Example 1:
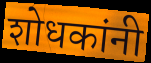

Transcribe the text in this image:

शोधकांनी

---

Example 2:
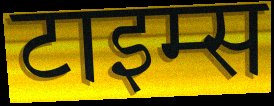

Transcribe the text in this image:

टाइम्स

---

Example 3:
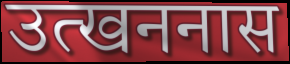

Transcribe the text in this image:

उत्खननास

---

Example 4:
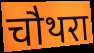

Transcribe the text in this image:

चौथरा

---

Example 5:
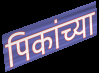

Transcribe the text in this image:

पिकांच्या